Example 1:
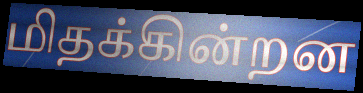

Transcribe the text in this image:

மிதக்கின்றன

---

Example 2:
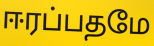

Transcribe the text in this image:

ஈரப்பதமே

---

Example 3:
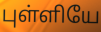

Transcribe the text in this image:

புள்ளியே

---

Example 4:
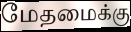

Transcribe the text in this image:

மேதமைக்கு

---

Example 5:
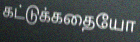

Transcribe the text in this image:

கட்டுக்கதையோ